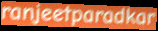
ranjeetparadkar